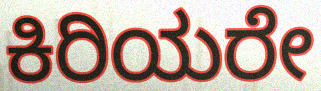
ಕಿರಿಯರೇ